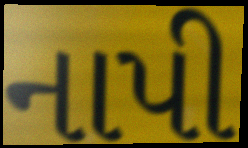
નાપી